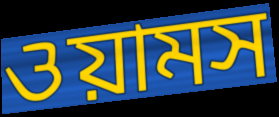
ওয়ামস